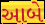
આબે